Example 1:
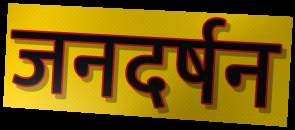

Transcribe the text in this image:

जनदर्षन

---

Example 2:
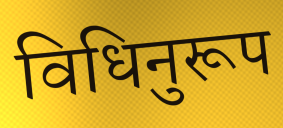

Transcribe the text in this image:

विधिनुरूप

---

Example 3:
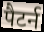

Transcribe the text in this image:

पैटर्न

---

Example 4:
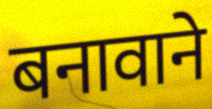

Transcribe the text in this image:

बनावाने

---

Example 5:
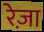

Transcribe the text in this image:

रेज़ा